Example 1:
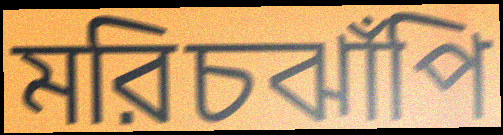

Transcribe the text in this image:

মরিচঝাঁপি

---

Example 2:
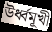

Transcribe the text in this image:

উর্ধ্বমূখী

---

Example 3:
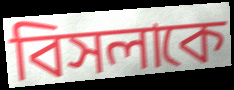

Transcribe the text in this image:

বিসলাকে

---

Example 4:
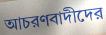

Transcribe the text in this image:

আচরণবাদীদের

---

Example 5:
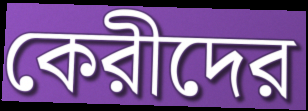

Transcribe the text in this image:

কেরীদের